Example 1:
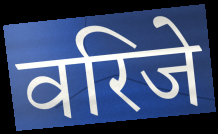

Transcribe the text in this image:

वरिजे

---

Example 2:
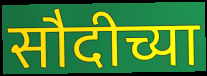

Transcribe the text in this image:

सौदीच्या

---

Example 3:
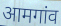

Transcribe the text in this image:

आमगांव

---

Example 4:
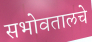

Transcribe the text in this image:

सभोवतालचे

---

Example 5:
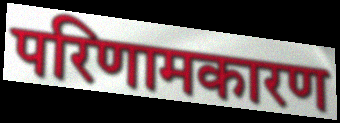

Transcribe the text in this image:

परिणामकारण